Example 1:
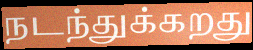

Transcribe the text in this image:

நடந்துக்கறது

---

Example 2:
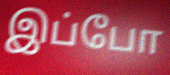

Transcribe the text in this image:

இப்போ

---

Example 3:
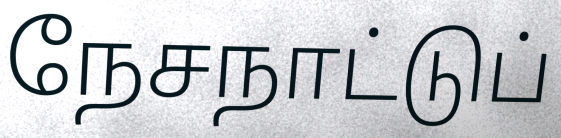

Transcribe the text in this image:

நேசநாட்டுப்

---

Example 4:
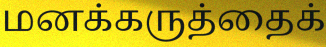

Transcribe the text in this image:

மனக்கருத்தைக்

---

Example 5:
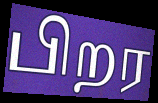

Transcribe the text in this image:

பிறர